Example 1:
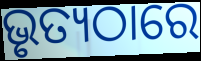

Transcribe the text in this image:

ଭୃତ୍ୟଠାରେ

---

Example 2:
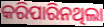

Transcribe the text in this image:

କରିପାରିନଥିଲା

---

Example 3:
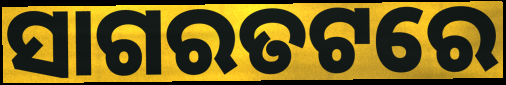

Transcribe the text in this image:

ସାଗରତଟରେ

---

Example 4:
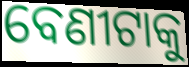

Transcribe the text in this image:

ବେଣୀଟାକୁ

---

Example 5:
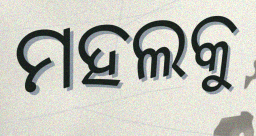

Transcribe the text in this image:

ମହଲକୁ